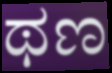
ಥಣ